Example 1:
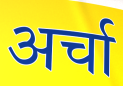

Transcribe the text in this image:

अर्चा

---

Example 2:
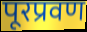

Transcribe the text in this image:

पूरप्रवण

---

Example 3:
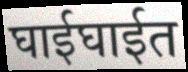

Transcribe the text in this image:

घाईघाईत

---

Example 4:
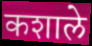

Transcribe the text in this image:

कशाले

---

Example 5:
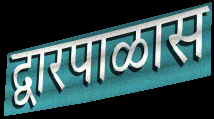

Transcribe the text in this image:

द्वारपाळास